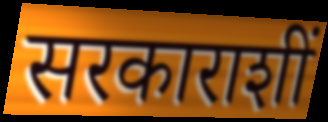
सरकाराशीं